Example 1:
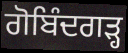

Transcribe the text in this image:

ਗੋਬਿੰਦਗੜ੍ਹ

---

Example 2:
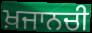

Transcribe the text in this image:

ਖ਼ਜਾਨਚੀ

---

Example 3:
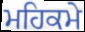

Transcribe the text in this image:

ਮਹਿਕਮੇ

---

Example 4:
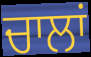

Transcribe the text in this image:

ਚਾਲਾਂ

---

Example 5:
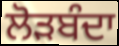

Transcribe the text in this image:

ਲੋੜਬੰਦਾ